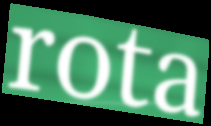
rota